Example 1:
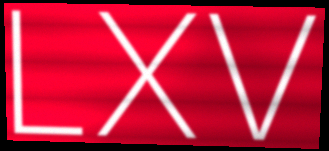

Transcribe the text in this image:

LXV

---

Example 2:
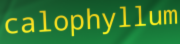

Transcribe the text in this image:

calophyllum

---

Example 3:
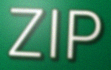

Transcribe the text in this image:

ZIP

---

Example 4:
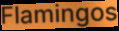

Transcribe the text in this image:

Flamingos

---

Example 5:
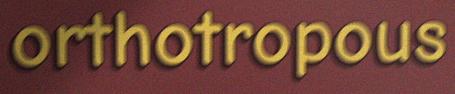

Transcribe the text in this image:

orthotropous